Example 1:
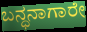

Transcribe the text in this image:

ಬನ್ಧನಾಗಾರೇ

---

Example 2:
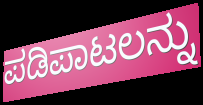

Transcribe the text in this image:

ಪಡಿಪಾಟಲನ್ನು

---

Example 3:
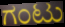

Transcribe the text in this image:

ಗಂಟು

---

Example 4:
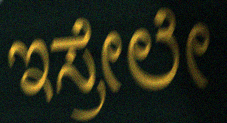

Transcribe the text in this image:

ಇಸ್ರೇಲೇ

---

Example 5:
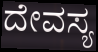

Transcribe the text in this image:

ದೇವಸ್ಯ